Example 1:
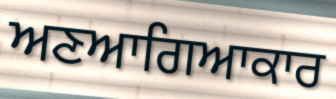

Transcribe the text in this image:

ਅਣਆਗਿਆਕਾਰ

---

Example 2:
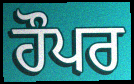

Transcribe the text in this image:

ਹੌਪਰ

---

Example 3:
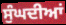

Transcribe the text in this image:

ਸੁੰਘਦੀਆਂ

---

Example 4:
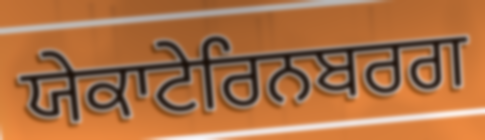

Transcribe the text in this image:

ਯੇਕਾਟੇਰਿਨਬਰਗ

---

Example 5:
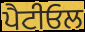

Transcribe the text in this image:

ਪੈਟੀਓਲ